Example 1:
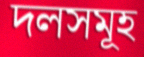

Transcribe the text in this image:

দলসমূহ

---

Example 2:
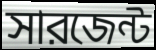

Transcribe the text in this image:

সারজেন্ট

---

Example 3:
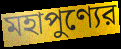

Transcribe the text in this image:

মহাপুণ্যের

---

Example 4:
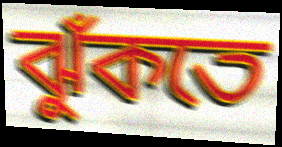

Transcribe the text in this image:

ঝুঁকতে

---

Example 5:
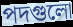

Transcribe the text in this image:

পদগুলো